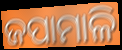
ଜପାମାଳି